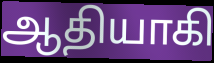
ஆதியாகி